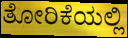
ತೋರಿಕೆಯಲ್ಲಿ